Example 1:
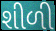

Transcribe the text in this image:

શીળી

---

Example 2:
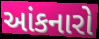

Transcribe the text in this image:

આંકનારો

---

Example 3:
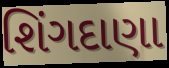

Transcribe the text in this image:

શિંગદાણા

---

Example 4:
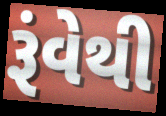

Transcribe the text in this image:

રૂંવેથી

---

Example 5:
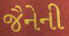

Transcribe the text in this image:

જૈનેની